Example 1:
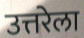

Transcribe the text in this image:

उत्तरेला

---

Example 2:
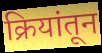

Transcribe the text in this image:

क्रियांतून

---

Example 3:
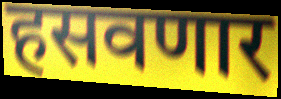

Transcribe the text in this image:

हसवणार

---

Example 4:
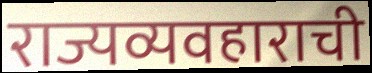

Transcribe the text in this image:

राज्यव्यवहाराची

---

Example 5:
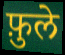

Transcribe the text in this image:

फ़ुले